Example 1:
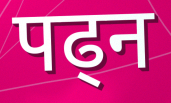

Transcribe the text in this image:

पढ्न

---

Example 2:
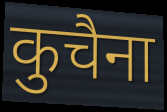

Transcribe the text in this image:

कुचैना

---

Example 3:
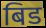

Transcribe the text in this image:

बिड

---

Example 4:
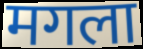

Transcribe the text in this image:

मगला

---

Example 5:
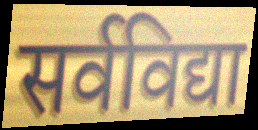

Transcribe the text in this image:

सर्वविद्या